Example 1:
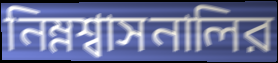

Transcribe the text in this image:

নিম্নশ্বাসনালির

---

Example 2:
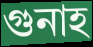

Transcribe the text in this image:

গুনাহ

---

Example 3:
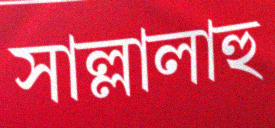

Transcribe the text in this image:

সাল্লালাহু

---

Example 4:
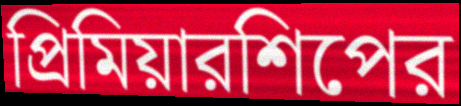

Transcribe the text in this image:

প্রিমিয়ারশিপের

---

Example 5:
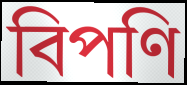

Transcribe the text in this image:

বিপণি